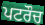
ਪਟਰੌਚ